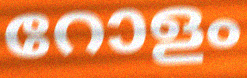
റോളം